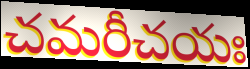
చమరీచయః